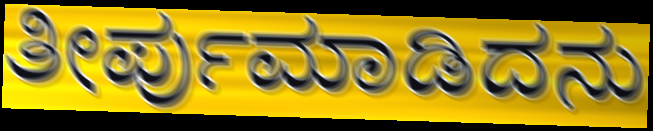
ತೀರ್ಪುಮಾಡಿದನು